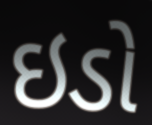
ઇડો